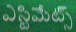
ఎస్టిమేట్స్